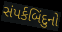
સંપર્કબિંદુનો